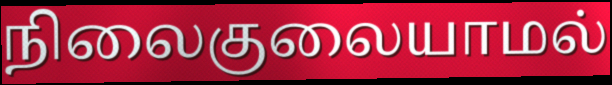
நிலைகுலையாமல்